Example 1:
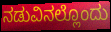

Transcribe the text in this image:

ನಡುವಿನಲ್ಲೊಂದು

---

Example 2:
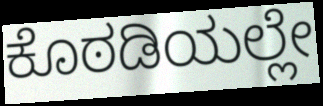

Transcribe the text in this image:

ಕೊಠಡಿಯಲ್ಲೇ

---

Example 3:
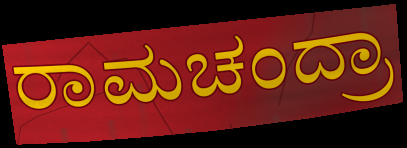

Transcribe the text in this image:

ರಾಮಚಂದ್ರಾ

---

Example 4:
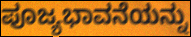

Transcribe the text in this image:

ಪೂಜ್ಯಭಾವನೆಯನ್ನು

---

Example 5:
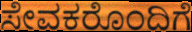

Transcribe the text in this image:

ಸೇವಕರೊಂದಿಗೆ